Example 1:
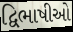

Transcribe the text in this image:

દ્વિભાષીઓ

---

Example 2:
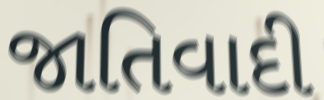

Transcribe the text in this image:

જાતિવાદી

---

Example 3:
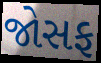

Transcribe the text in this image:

જોસફ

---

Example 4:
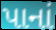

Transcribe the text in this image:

પાનાં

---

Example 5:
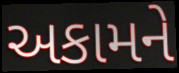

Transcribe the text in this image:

અકામને